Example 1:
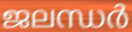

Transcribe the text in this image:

ജലന്ധർ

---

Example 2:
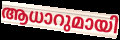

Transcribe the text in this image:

ആധാറുമായി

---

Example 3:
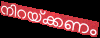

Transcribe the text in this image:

നിറയ്‌ക്കണം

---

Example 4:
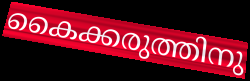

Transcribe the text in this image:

കൈക്കരുത്തിനു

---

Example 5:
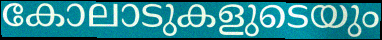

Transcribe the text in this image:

കോലാടുകളുടെയും